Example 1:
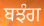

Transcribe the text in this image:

ਬਝੰਗ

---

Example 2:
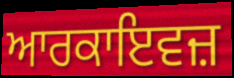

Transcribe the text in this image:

ਆਰਕਾਇਵਜ਼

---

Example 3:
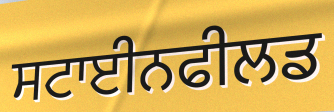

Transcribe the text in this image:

ਸਟਾਈਨਫੀਲਡ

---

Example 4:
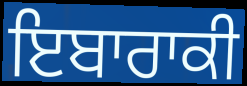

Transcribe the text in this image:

ਇਬਾਰਾਕੀ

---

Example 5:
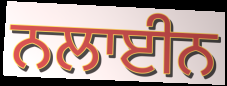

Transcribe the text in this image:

ਨਲਾਈਨ